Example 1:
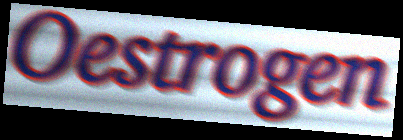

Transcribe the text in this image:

Oestrogen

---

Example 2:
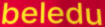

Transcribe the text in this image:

beledu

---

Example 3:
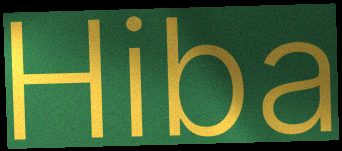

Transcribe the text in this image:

Hiba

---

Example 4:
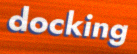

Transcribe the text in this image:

docking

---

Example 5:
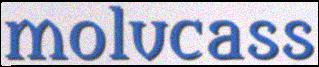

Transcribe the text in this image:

molucass